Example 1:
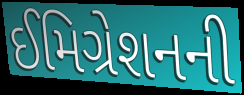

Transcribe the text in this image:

ઈમિગ્રેશનની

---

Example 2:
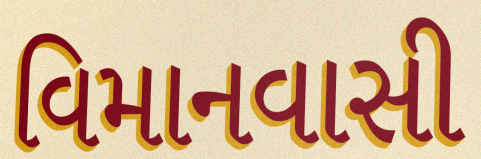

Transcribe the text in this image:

વિમાનવાસી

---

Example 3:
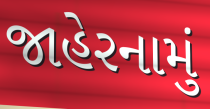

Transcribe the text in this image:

જાહેરનામું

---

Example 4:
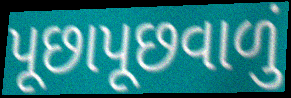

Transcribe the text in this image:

પૂછાપૂછવાળું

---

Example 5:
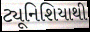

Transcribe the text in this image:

ટ્યૂનિશિયાથી